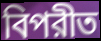
বিপরীত